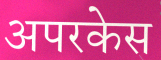
अपरकेस